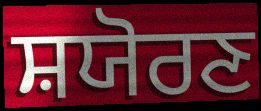
ਸ਼ਯੋਰਣ